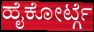
ಹೈಕೋರ್ಟ್ಗೆ